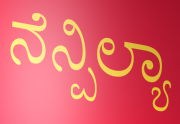
ನೆನ್ಪಿಲ್ಯಾ